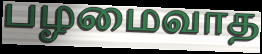
பழமைவாத